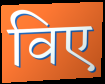
विए